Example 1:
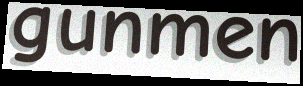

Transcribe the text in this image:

gunmen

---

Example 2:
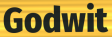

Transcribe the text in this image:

Godwit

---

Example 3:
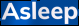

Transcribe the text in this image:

Asleep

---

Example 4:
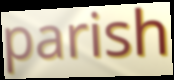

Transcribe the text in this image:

parish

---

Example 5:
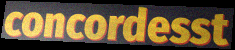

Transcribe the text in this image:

concordesst